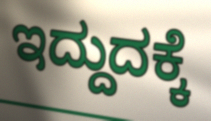
ಇದ್ದುದಕ್ಕೆ